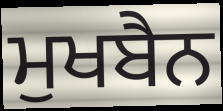
ਮੁਖਬੈਨ